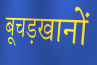
बूचड़खानों